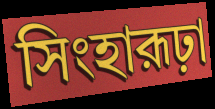
সিংহারূঢ়া